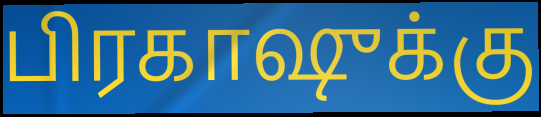
பிரகாஷுக்கு